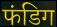
फंडिग